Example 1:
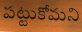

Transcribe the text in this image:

పట్టుకోమని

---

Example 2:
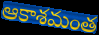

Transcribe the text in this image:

ఆకాశమంత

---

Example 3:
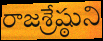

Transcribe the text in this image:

రాజశ్రేష్ఠుని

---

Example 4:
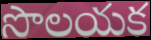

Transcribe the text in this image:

సొలయక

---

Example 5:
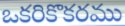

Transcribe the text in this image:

ఒకరికొకరము